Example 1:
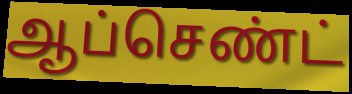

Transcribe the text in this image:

ஆப்செண்ட்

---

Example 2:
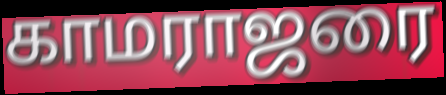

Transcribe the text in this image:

காமராஜரை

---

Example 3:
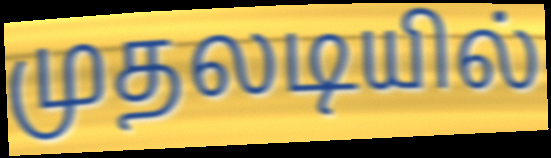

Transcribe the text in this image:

முதலடியில்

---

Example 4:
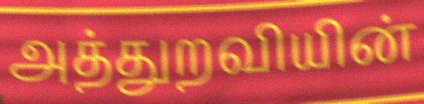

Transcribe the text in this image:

அத்துறவியின்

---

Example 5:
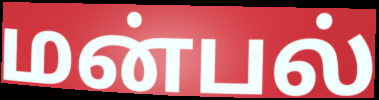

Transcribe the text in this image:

மன்பல்